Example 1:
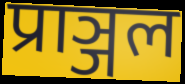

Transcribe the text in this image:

प्राञ्जल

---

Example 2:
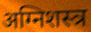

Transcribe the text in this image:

अग्निशस्त्र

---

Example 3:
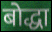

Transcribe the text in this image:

बोद्धा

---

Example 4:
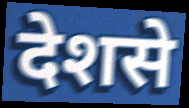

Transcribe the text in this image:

देशसे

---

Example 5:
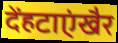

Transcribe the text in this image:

देंहटाएंखैर